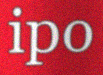
ipo